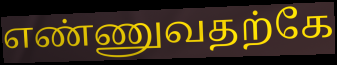
எண்ணுவதற்கே